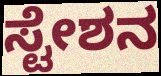
ಸ್ಟೇಶನ